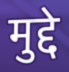
मुद्दे